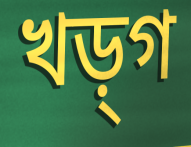
খড়্‌গ